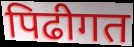
पिढीगत